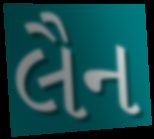
લૈન